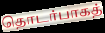
தொடர்பாகத்